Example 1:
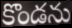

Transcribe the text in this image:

కొండను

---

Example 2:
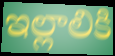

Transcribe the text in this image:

ఇల్లాలికి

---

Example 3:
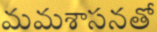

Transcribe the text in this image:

మమశాసనతో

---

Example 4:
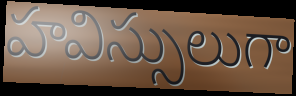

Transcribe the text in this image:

హవిస్సులుగా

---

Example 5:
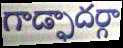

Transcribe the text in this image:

గాడ్ఫాదర్గా